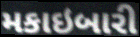
મકાઇબારી